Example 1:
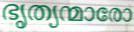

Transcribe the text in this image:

ഭൃത്യന്മാരോ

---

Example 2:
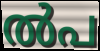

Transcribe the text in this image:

ൽപ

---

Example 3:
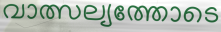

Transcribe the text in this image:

വാത്സല്യത്തോടെ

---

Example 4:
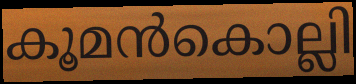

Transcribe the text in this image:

കൂമൻകൊല്ലി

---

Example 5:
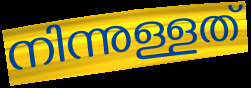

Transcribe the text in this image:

നിന്നുള്ളത്